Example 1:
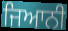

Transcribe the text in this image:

ਜਿਆਨੀ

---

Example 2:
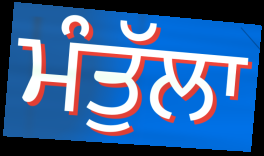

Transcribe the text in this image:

ਮੰਤੁੱਲਾ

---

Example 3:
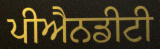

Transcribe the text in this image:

ਪੀਐਨਡੀਟੀ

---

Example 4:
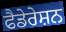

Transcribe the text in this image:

ਫੈਡੇਰੇਸ਼ਨ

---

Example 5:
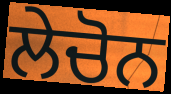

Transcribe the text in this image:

ਲੇਚੋਨ